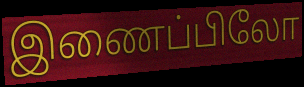
இணைப்பிலோ